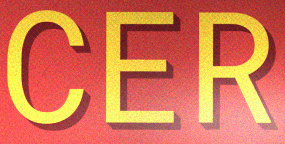
CER